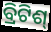
ବ୍ରିଟିଶ୍